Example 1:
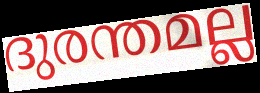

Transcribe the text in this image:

ദുരന്തമല്ല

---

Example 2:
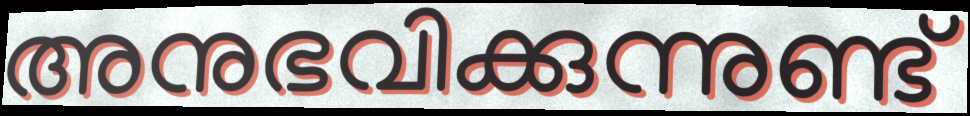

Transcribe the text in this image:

അനുഭവിക്കുന്നുണ്ട്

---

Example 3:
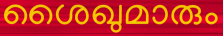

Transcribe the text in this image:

ശൈഖുമാരും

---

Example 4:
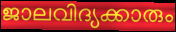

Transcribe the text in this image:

ജാലവിദ്യക്കാരും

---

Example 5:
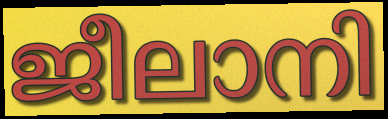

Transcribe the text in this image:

ജീലാനി